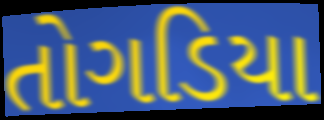
તોગડિયા